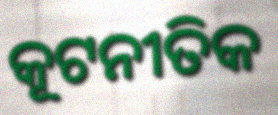
କୂଟନୀତିକ